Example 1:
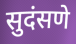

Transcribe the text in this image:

सुदंसणे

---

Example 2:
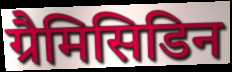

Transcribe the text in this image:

ग्रैमिसिडिन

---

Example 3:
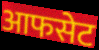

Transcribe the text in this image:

आफसेट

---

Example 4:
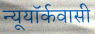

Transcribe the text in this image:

न्यूयॉर्कवासी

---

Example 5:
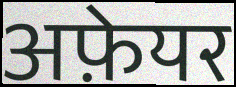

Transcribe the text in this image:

अफ़ेयर